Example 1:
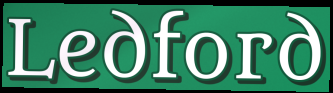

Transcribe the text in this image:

Ledford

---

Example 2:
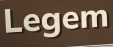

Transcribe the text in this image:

Legem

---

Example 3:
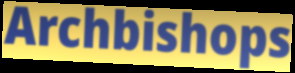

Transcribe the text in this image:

Archbishops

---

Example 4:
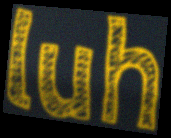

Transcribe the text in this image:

luh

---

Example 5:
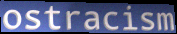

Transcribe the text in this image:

ostracism